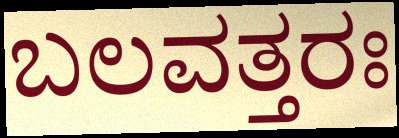
ಬಲವತ್ತರಃ